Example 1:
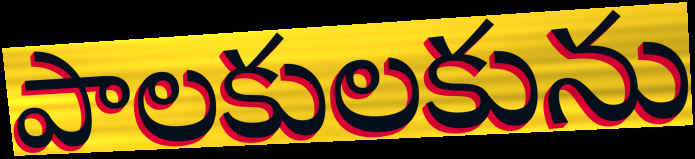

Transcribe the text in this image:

పాలకులకును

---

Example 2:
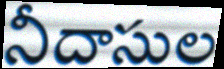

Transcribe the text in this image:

నీదాసుల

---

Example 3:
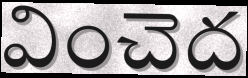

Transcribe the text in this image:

వించెద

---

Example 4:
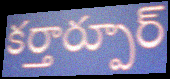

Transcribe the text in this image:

కర్తార్పూర్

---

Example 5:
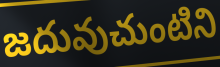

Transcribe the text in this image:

జదువుచుంటిని